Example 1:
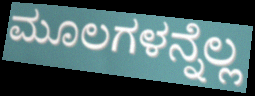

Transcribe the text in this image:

ಮೂಲಗಳನ್ನೆಲ್ಲ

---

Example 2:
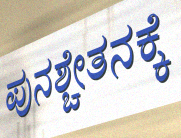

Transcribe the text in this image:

ಪುನಶ್ಚೇತನಕ್ಕೆ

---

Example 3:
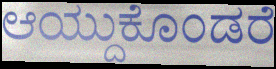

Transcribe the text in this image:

ಆಯ್ದುಕೊಂಡರೆ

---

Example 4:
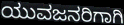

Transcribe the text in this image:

ಯುವಜನರಿಗಾಗಿ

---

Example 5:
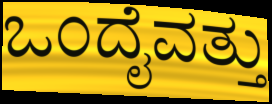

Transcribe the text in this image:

ಒಂದೈವತ್ತು